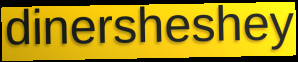
dinersheshey